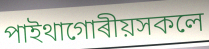
পাইথাগোৰীয়সকলে